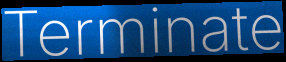
Terminate